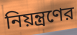
নিয়ন্ত্রণের